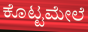
ಕೊಟ್ಟಮೇಲೆ